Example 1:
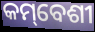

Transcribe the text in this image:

କମ୍‌ବେଶୀ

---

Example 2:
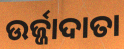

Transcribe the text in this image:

ଉର୍ଜ୍ଜାଦାତା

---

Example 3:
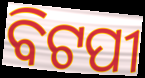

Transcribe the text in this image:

ବିଟପୀ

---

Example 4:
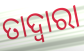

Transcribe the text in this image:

ତାଦ୍ଵାରା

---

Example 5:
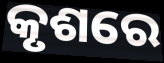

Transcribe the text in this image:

କୃଶରେ